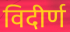
विदीर्ण